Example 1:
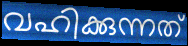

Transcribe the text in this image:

വഹിക്കുന്നത്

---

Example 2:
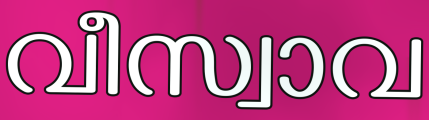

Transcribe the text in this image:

വീസ്വാവ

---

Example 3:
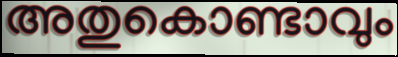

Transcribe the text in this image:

അതുകൊണ്ടാവും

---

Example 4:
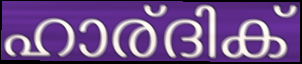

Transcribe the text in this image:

ഹാര്ദിക്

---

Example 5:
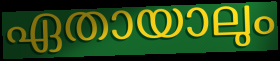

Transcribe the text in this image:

ഏതായാലും